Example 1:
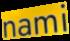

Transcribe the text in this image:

nami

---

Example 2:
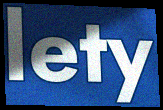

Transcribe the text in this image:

lety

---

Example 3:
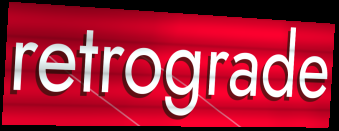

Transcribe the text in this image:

retrograde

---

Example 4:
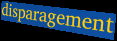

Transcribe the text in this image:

disparagement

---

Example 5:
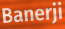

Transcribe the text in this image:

Banerji